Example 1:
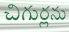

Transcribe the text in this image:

చిగుర్లను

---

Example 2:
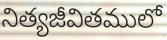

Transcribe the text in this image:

నిత్యజీవితములో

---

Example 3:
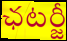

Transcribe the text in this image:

ఛటర్జీ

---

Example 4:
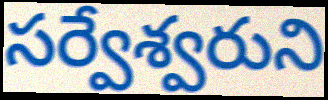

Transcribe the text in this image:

సర్వేశ్వరుని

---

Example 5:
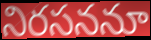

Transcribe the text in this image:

నిరసననూ